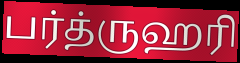
பர்த்ருஹரி